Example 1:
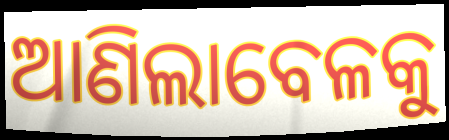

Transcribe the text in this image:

ଆଣିଲାବେଳକୁ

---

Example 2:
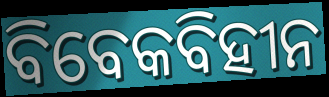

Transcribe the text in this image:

ବିବେକବିହୀନ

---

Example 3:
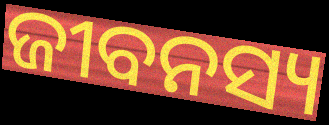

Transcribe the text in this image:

ଜୀବନସ୍ୟ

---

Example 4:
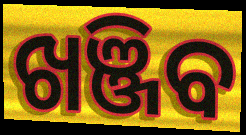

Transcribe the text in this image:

ଖଞ୍ଜିବ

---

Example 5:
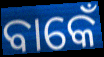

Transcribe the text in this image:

ବାକେଁ